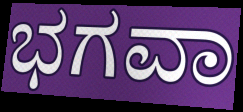
ಭಗವಾ